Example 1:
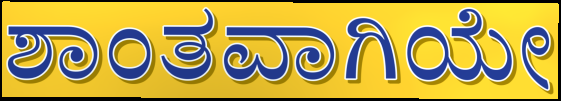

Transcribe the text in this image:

ಶಾಂತವಾಗಿಯೇ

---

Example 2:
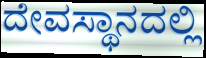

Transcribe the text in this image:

ದೇವಸ್ಥಾನದಲ್ಲಿ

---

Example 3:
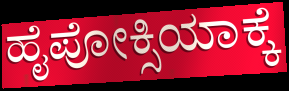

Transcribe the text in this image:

ಹೈಪೋಕ್ಸಿಯಾಕ್ಕೆ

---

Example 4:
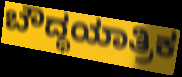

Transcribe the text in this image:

ಬೌದ್ಧಯಾತ್ರಿಕ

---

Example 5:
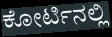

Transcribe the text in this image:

ಕೋರ್ಟಿನಲ್ಲಿ